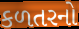
કળતરનો